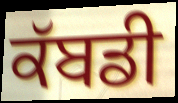
ਕੱਬਡੀ